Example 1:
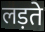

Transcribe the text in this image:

लड़ते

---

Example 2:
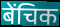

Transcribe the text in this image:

बेंचिक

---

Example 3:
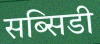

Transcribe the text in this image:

सब्सिडी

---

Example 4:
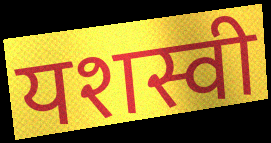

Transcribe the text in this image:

यशस्‍वी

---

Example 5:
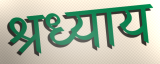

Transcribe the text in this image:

श्रध्याय